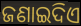
ଜଣାଇଦିଏ